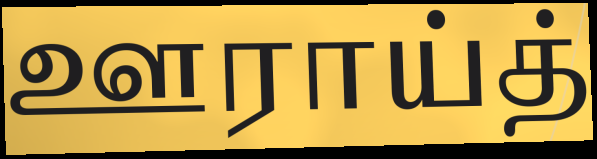
ஊராய்த்